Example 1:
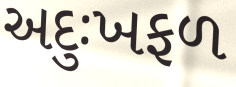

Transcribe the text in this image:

અદુઃખફળ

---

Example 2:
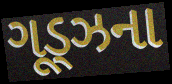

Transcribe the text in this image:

ગૂડ્ઝના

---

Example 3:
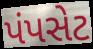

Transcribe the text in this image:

પંપસેટ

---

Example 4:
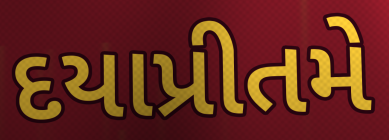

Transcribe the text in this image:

દયાપ્રીતમે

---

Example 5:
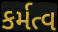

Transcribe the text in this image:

કર્મત્વ